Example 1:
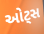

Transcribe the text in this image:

ઓટ્સ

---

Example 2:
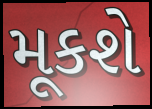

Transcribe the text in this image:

મૂકશે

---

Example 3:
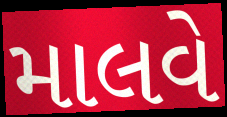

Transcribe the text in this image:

માલવે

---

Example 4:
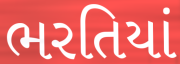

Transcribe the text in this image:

ભરતિયાં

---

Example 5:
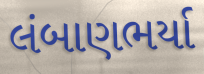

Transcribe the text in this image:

લંબાણભર્યા